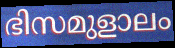
ഭിസമുളാലം